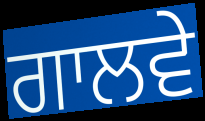
ਗਾਲਵੇ